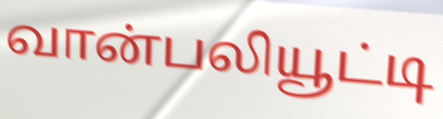
வான்பலியூட்டி